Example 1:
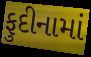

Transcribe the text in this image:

ફુદીનામાં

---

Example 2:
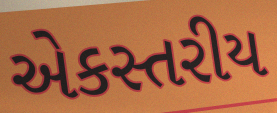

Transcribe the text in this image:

એકસ્તરીય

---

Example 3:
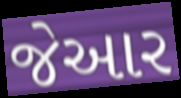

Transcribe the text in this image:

જેઆર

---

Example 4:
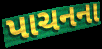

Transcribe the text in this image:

પાચનના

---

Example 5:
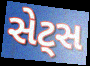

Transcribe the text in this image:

સેટ્સ